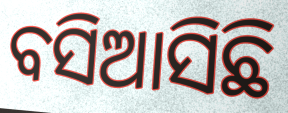
ବସିଆସିଛି